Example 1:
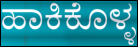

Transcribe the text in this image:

ಹಾಕಿಕೊಳ್ಳ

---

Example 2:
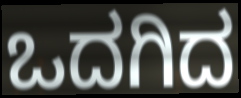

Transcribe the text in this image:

ಒದಗಿದ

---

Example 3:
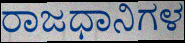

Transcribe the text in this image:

ರಾಜಧಾನಿಗಳ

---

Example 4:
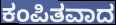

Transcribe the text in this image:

ಕಂಪಿತವಾದ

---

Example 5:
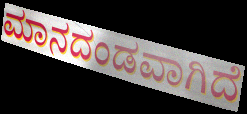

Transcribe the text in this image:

ಮಾನದಂಡವಾಗಿದೆ